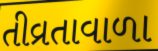
તીવ્રતાવાળા